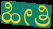
ಹೀತಿ